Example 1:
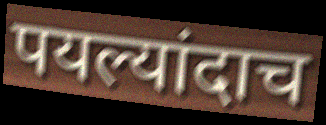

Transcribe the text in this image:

पयल्यांदाच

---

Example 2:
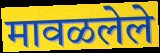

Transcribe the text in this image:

मावळलेले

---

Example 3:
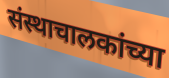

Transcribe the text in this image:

संस्थाचालकांच्या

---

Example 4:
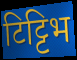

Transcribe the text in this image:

टिट्टिभ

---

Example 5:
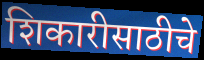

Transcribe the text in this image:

शिकारीसाठीचे